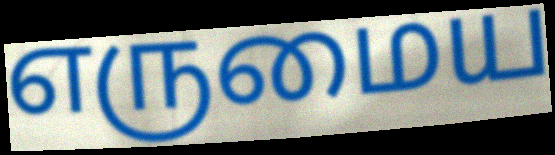
எருமைய